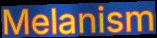
Melanism